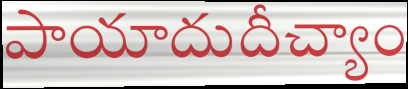
పాయాదుదీచ్యాం